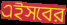
এইসবের